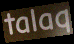
talaq